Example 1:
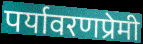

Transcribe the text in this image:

पर्यावरणप्रेमी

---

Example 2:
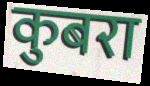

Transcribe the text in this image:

कुबरा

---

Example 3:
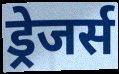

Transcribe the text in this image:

ड्रेजर्स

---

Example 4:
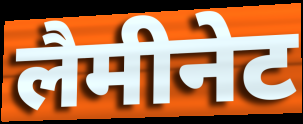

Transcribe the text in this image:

लैमीनेट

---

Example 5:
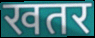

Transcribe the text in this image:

खतर